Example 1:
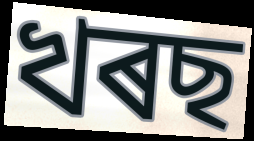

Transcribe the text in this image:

খৰছ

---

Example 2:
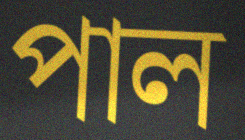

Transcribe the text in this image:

পাল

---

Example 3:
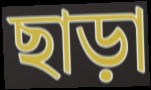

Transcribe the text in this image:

ছাড়া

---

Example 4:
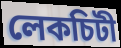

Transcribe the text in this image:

লেকচিটী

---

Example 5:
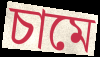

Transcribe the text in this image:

চামে